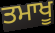
ਤਮਾਖੂ